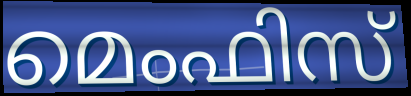
മെംഫിസ്